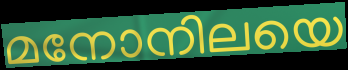
മനോനിലയെ